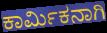
ಕಾರ್ಮಿಕನಾಗಿ